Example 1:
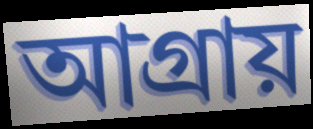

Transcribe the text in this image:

আগ্রায়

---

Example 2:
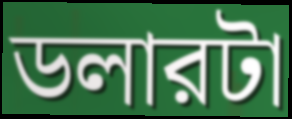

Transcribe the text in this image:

ডলারটা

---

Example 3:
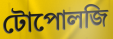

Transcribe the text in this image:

টোপোলজি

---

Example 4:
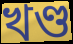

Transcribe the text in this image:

খণ্ড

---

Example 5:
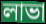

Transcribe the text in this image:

লাভা